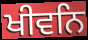
ਖੀਵਨਿ